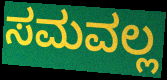
ಸಮವಲ್ಲ